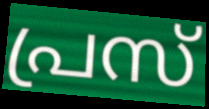
പ്രസ്